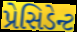
પ્રેસિડેન્ટ